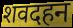
शवदहन